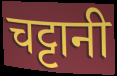
चट्टानी